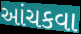
આંચકવા